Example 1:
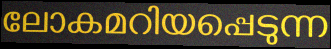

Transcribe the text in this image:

ലോകമറിയപ്പെടുന്ന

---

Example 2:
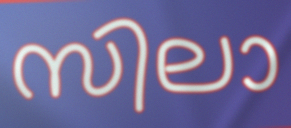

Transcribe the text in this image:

സിലാ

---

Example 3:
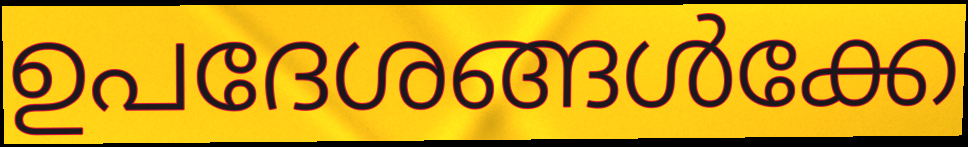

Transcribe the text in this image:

ഉപദേശങ്ങൾക്കേ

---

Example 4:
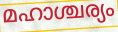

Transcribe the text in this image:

മഹാശ്ചര്യം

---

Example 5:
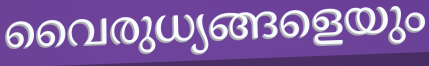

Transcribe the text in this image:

വൈരുധ്യങ്ങളെയും